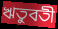
ঋতুবতী